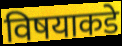
विषयाकडे